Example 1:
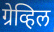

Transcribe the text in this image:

ग्रेव्हिल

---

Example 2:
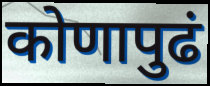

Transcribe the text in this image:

कोणापुढं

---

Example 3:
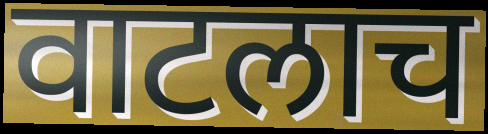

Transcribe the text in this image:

वाटलाच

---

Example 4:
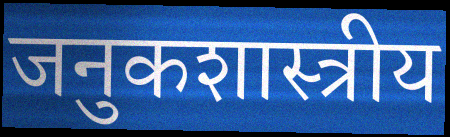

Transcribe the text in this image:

जनुकशास्त्रीय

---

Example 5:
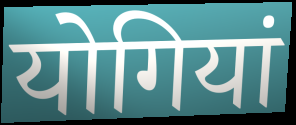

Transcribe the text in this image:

योगियां